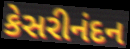
કેસરીનંદન